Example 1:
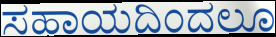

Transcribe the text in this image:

ಸಹಾಯದಿಂದಲೂ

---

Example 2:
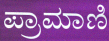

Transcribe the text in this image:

ಪ್ರಾಮಾಣಿ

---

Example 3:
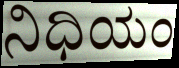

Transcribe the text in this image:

ನಿಧಿಯಂ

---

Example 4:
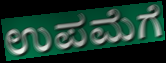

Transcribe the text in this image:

ಉಪಮೆಗೆ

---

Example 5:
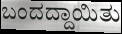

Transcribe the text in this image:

ಬಂದದ್ದಾಯಿತು